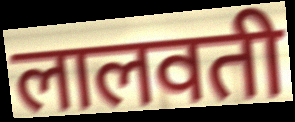
लालवती